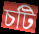
চটি